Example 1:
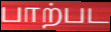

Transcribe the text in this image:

பாற்பட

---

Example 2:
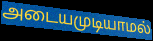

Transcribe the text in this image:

அடையமுடியாமல்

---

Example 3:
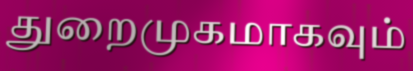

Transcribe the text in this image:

துறைமுகமாகவும்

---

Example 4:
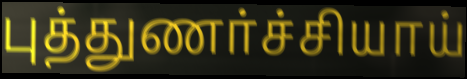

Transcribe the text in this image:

புத்துணர்ச்சியாய்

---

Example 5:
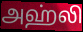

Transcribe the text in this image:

அஹ்லி